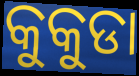
କୁକୁଡା